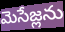
మెసేజ్లను